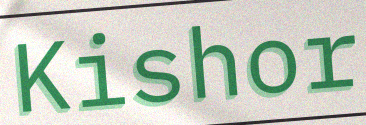
Kishor